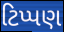
ટિપ્પણ